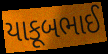
યાકૂબભાઈ